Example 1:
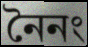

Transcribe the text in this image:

নৈনং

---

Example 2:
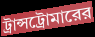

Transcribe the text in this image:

ট্রান্সট্রোমারের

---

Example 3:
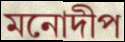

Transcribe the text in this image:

মনোদীপ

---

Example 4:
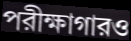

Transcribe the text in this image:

পরীক্ষাগারও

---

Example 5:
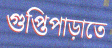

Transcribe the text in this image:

গুপ্তিপাড়াতে